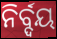
ନିର୍ବ୍ଦୟ